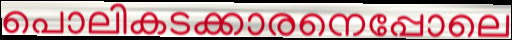
പൊലികടക്കാരനെപ്പോലെ